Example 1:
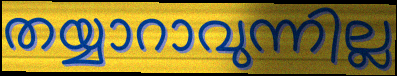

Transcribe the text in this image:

തയ്യാറാവുന്നില്ല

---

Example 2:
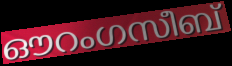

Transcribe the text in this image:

ഔറംഗസീബ്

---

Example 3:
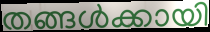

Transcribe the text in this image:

തങ്ങൾക്കായി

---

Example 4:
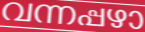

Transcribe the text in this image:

വന്നപ്പഴാ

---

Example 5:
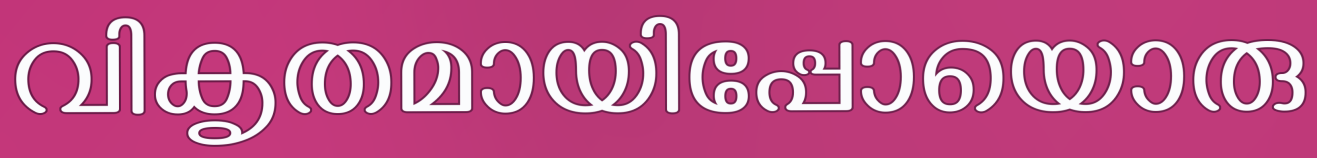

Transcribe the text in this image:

വികൃതമായിപ്പോയൊരു